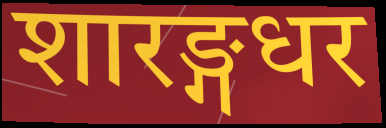
शारङ्गधर